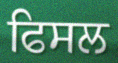
ਫਿਸਲ